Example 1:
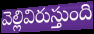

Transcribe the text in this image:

వెల్లివిరుస్తుంది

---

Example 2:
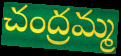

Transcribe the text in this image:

చంద్రమ్మ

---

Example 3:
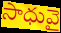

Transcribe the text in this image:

సాధువై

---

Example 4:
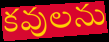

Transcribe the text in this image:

కవులను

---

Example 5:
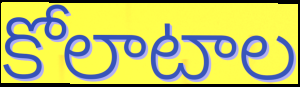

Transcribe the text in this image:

కోలాటాల